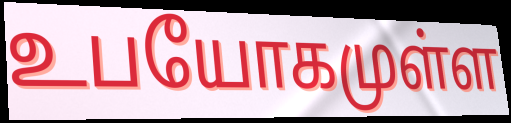
உபயோகமுள்ள